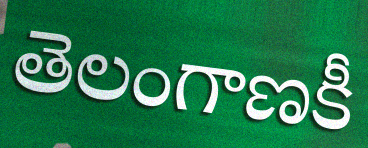
తెలంగాణకీ